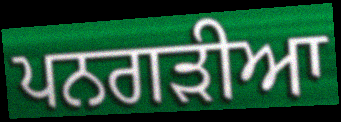
ਪਨਗੜੀਆ